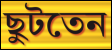
ছুটতেন